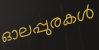
ഓലപ്പുരകൾ